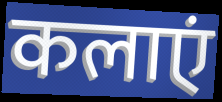
कलाएं